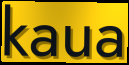
kaua